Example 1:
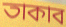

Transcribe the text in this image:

তাকাব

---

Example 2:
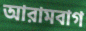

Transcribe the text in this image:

আরামবাগ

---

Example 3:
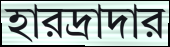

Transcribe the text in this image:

হারদ্রাদার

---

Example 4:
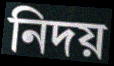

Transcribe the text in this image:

নিদয়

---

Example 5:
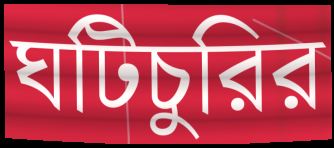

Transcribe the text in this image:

ঘটিচুরির